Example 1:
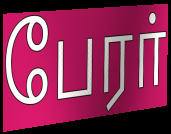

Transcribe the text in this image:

பேரர்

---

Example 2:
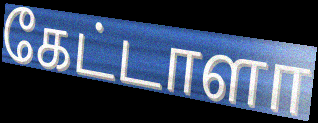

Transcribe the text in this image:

கேட்டாளா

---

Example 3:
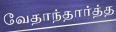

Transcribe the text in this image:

வேதாந்தார்த்த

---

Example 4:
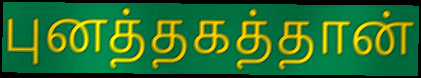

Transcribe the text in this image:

புனத்தகத்தான்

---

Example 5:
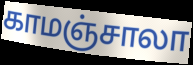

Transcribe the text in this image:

காமஞ்சாலா